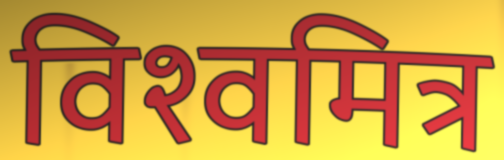
विश्वमित्र